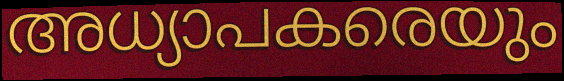
അധ്യാപകരെയും